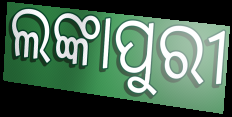
ଲଙ୍କାପୁରୀ